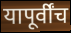
यापूर्वींच